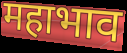
महाभाव